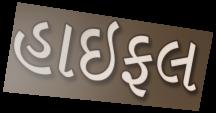
હાઇફલ